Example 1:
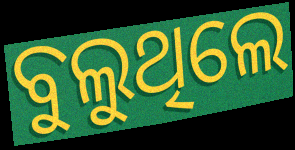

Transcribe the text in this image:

ବୁଲୁଥିଲେ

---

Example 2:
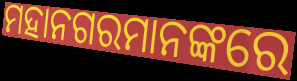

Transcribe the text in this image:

ମହାନଗରମାନଙ୍କରେ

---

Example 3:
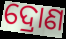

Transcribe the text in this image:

ଦ୍ରୋଣ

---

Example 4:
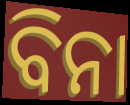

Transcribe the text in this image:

ବିନା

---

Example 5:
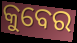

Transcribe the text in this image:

କୁବେର